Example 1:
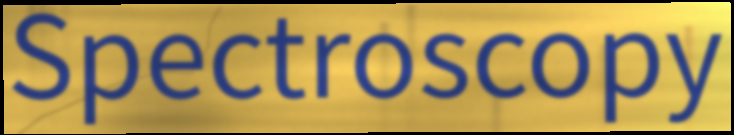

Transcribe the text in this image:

Spectroscopy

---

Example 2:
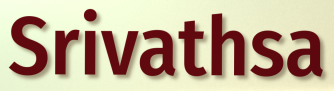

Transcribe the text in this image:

Srivathsa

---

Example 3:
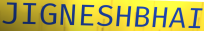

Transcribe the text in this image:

JIGNESHBHAI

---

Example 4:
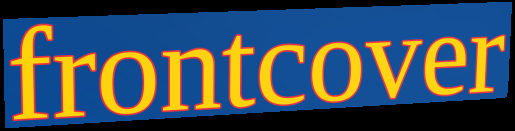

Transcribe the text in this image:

frontcover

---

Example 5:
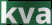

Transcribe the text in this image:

kva